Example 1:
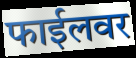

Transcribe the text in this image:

फाईलवर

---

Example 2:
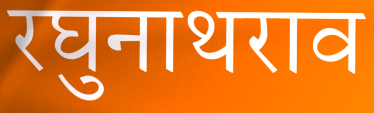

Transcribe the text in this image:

रघुनाथराव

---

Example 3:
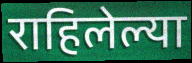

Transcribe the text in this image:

राहिलेल्या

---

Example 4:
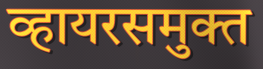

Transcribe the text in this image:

व्हायरसमुक्त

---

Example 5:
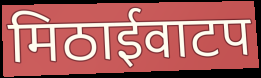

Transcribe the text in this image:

मिठाईवाटप